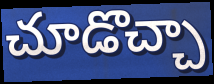
చూడొచ్చా